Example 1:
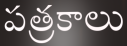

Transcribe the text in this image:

పత్రకాలు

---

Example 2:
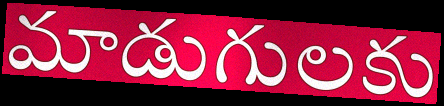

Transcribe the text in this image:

మాడుగులకు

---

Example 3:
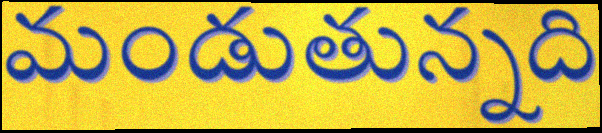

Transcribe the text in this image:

మండుతున్నది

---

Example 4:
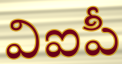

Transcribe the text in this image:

విఐపీ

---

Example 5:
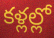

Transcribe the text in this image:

కళ్లల్లో